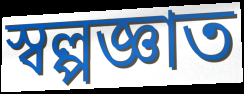
স্বল্পজ্ঞাত